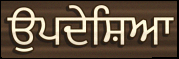
ਉਪਦੇਸ਼ਿਆ